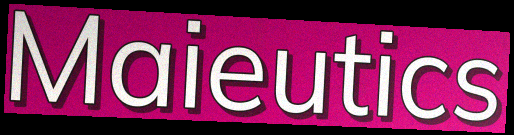
Maieutics